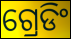
ଗ୍ରେଡିଂ